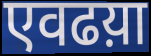
एवढय़ा